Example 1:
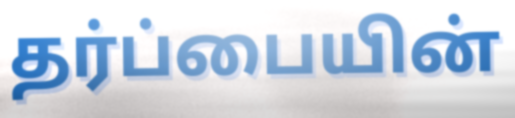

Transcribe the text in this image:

தர்ப்பையின்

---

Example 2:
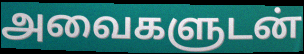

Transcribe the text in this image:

அவைகளுடன்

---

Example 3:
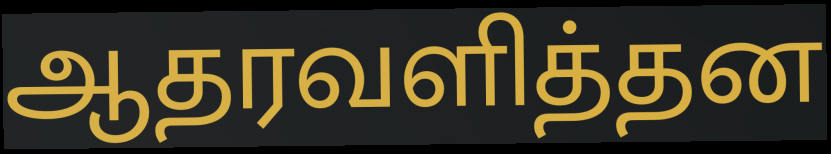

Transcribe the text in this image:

ஆதரவளித்தன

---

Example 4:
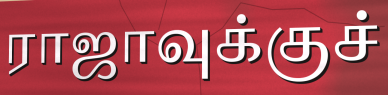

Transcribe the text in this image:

ராஜாவுக்குச்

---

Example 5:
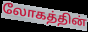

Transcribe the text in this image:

லோகத்தின்